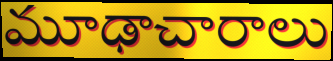
మూఢాచారాలు